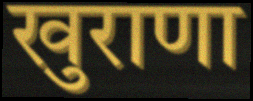
खुराणा